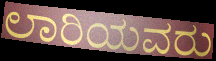
ಲಾರಿಯವರು